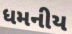
ધમનીય